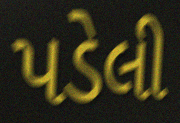
પડેલી